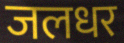
जलधर